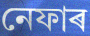
নেফাৰ